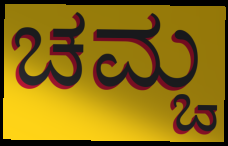
ಚಮ್ಚ